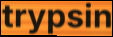
trypsin